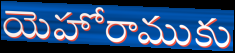
యెహోరాముకు